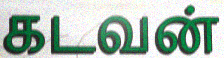
கடவன்